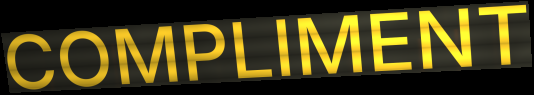
COMPLIMENT